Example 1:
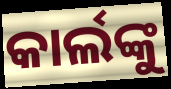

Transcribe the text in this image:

କାର୍ଲଙ୍କୁ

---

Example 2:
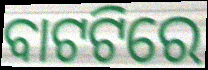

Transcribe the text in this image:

ବାଟଟିରେ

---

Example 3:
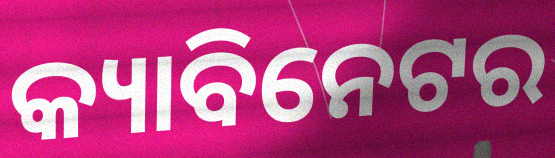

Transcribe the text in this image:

କ୍ୟାବିନେଟର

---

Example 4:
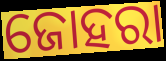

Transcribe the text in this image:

ଜୋହରା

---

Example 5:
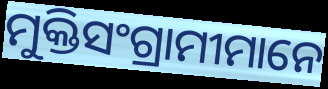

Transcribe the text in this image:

ମୁକ୍ତିସଂଗ୍ରାମୀମାନେ